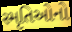
સ્મૃતિઓનો